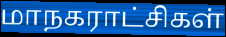
மாநகராட்சிகள்